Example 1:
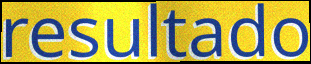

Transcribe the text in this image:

resultado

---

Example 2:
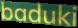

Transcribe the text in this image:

baduki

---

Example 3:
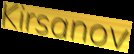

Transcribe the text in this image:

Kirsanov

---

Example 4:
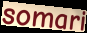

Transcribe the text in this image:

somari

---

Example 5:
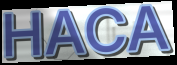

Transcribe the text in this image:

HACA